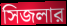
সিজলার